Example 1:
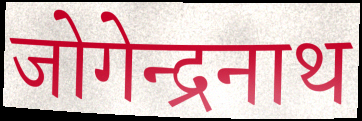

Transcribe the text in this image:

जोगेन्द्रनाथ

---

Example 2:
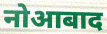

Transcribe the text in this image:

नोआबाद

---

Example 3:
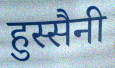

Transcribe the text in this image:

हुस्सैनी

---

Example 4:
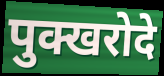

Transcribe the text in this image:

पुक्खरोदे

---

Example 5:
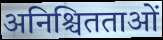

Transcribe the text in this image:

अनिश्चितताओं